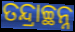
ତନ୍ଦ୍ରାଚ୍ଛନ୍ନ